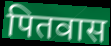
पितवास